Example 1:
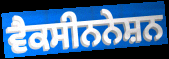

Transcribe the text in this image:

ਵੈਕਸੀਨਨੇਸ਼ਨ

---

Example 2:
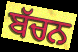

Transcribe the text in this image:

ਬੱਚਨ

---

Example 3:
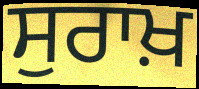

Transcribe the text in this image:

ਸੁਰਾਖ਼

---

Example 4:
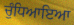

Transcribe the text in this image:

ਚੁੰਧਿਆਇਆ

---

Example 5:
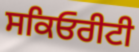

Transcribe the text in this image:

ਸਕਿਓਰੀਟੀ